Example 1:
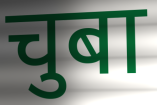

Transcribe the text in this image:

चुबा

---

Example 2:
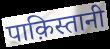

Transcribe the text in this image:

पाक़िस्तानी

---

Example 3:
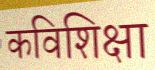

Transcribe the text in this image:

कविशिक्षा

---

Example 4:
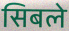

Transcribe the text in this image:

सिबले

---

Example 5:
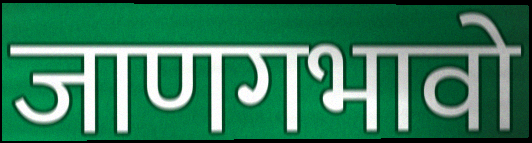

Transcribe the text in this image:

जाणगभावो